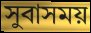
সুবাসময়